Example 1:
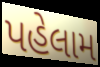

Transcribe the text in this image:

પહેલામ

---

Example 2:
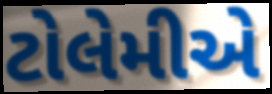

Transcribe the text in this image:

ટોલેમીએ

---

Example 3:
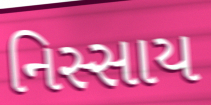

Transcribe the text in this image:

નિસ્સાય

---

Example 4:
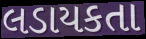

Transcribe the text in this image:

લડાયકતા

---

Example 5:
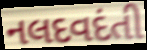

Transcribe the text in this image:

નલદવદંતી